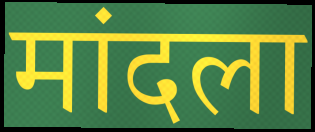
मांदला